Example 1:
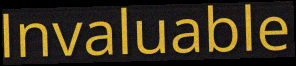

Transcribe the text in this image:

Invaluable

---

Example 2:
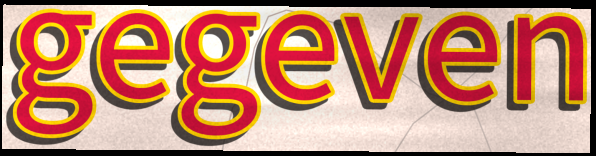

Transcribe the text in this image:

gegeven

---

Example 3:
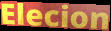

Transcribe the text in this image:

Elecion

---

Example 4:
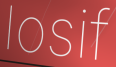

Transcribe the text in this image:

Iosif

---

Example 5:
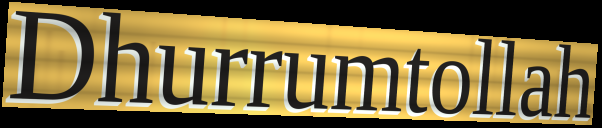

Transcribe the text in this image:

Dhurrumtollah